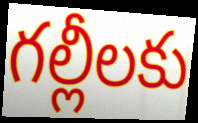
గల్లీలకు